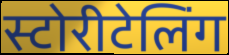
स्टोरीटेलिंग